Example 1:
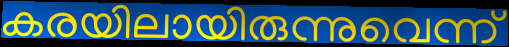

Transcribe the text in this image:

കരയിലായിരുന്നുവെന്ന്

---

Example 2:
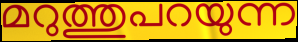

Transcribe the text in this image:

മറുത്തുപറയുന്ന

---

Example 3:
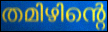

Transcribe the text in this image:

തമിഴിന്റെ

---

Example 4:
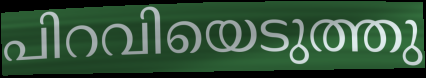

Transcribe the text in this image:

പിറവിയെടുത്തു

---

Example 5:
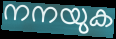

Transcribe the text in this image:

നനയുക